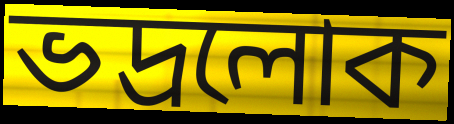
ভদ্রলোক